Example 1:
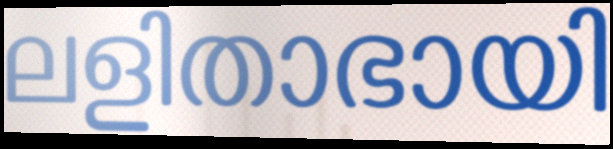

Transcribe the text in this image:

ലളിതാഭായി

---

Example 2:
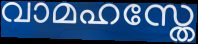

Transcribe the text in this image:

വാമഹസ്തേ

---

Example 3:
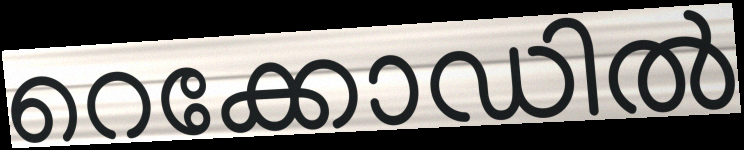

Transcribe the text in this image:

റെക്കോഡിൽ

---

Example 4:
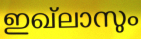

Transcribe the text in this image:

ഇഖ്‌ലാസും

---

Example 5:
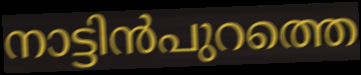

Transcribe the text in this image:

നാട്ടിൻപുറത്തെ